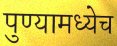
पुण्यामध्येच